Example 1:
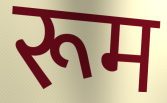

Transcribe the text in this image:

रूम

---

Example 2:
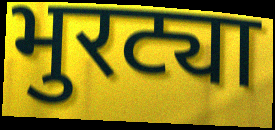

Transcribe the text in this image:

भुरट्या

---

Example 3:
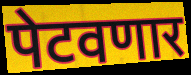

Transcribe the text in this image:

पेटवणार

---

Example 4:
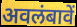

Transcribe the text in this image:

अवलंबावें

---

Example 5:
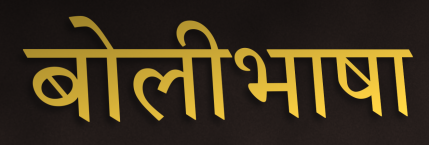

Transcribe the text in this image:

बोलीभाषा